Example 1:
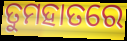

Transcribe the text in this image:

ତୁମହାତରେ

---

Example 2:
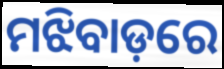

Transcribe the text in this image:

ମଝିବାଡ଼ରେ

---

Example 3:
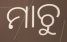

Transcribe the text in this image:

ମାଚୁ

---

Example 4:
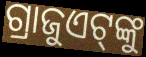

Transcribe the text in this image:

ଗ୍ରାଜୁଏଟ୍‌ଙ୍କୁ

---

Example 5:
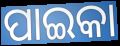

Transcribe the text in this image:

ପାଇକା